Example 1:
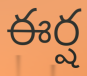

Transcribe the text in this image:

ఈర్ష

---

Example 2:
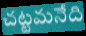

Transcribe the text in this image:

చట్టమనేది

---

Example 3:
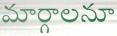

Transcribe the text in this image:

మార్గాలనూ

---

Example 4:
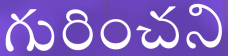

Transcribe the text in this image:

గురించని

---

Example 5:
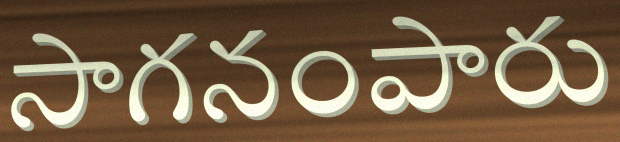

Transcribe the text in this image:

సాగనంపారు